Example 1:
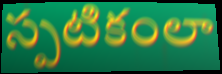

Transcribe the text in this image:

స్పటికంలా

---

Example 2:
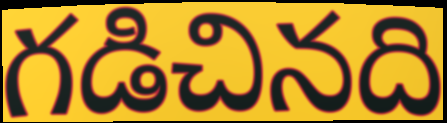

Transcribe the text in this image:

గడిచినది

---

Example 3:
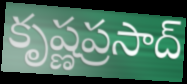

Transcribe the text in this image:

కృష్ణప్రసాద్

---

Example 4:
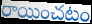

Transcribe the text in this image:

రాయించటం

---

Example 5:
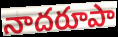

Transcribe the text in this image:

నాదరూపా